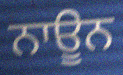
ਨਾਊਨ